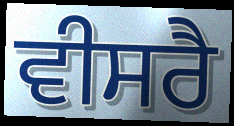
ਵੀਸਰੈ